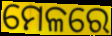
ମେଳରେ